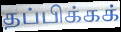
தப்பிக்கக்